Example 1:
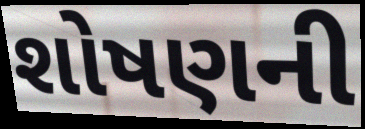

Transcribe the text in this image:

શોષણની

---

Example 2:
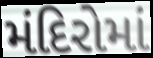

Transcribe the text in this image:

મંદિરોમાં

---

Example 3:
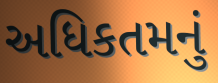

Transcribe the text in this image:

અધિકતમનું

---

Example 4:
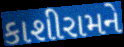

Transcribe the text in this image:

કાશીરામને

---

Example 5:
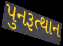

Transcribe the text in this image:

પુનરૂત્થાન